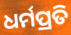
ଧର୍ମପ୍ରତି